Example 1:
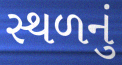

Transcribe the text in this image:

સ્થળનું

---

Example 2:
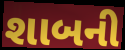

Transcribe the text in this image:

શાબની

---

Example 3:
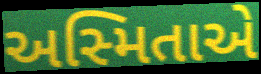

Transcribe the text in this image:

અસ્મિતાએ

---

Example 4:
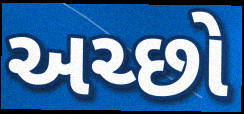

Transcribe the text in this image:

અચ્છો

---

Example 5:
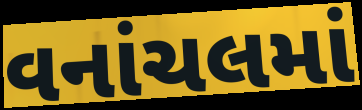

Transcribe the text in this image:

વનાંચલમાં